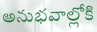
అనుభవాల్లోకి